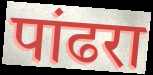
पांढरा